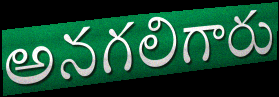
అనగలిగారు